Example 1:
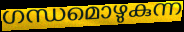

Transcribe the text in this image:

ഗന്ധമൊഴുകുന്ന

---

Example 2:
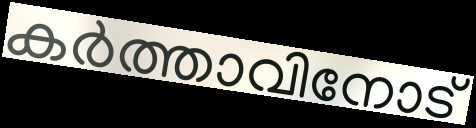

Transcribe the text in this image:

കർത്താവിനോട്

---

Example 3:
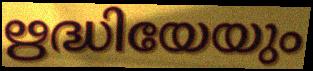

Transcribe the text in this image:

ഋദ്ധിയേയും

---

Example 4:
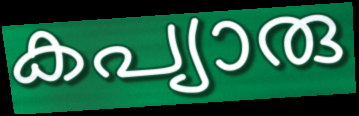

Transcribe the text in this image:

കപ്യാരു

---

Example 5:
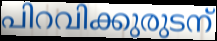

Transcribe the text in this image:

പിറവിക്കുരുടന്